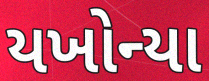
યખોન્યા